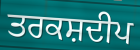
ਤਰਕਸ਼ਦੀਪ